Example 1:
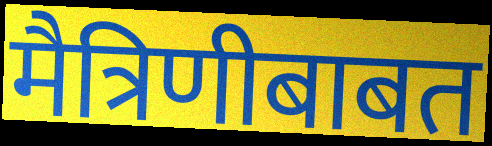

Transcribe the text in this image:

मैत्रिणीबाबत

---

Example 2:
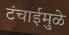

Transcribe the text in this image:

टंचाईमुळे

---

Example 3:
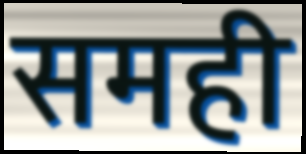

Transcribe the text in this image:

समही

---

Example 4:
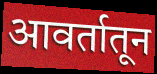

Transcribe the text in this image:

आवर्तातून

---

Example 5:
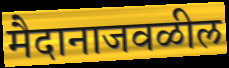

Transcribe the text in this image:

मैदानाजवळील